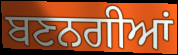
ਬਣਨਗੀਆਂ